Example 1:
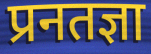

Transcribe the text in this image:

प्रनतज्ञा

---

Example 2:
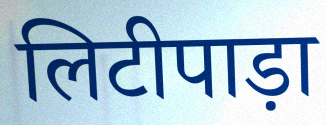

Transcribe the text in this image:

लिटीपाड़ा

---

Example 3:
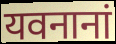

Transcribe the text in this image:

यवनानां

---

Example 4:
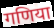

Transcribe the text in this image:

गणिया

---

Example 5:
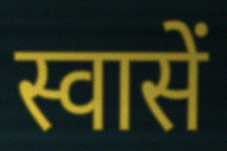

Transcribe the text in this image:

स्वासें